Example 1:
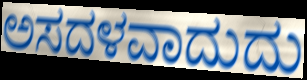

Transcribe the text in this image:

ಅಸದಳವಾದುದು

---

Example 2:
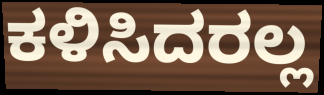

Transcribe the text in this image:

ಕಳಿಸಿದರಲ್ಲ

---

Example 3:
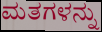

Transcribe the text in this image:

ಮತಗಳನ್ನು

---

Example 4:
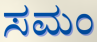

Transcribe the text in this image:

ಸಮಂ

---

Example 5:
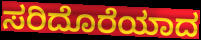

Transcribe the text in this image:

ಸರಿದೊರೆಯಾದ